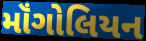
મૉંગોલિયન